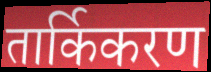
तार्किकरण